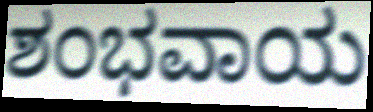
ಶಂಭವಾಯ